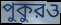
পুকুরও